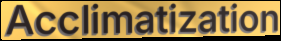
Acclimatization